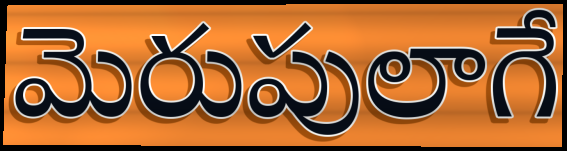
మెరుపులాగే